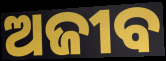
ଅଜୀବ